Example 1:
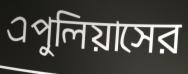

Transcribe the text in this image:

এপুলিয়াসের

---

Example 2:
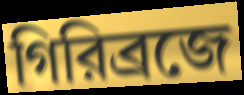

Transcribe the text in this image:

গিরিব্রজে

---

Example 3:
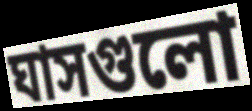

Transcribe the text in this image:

ঘাসগুলো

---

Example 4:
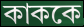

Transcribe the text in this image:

কাককে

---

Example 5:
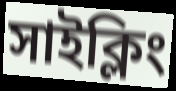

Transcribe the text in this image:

সাইক্লিং